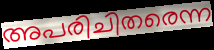
അപരിചിതരെന്ന